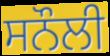
ਸਨੌਲੀ